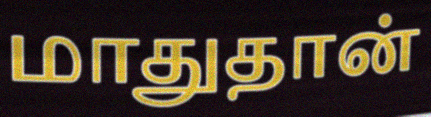
மாதுதான்